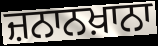
ਜ਼ਨਾਨਖ਼ਾਨਾ